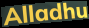
Alladhu